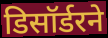
डिसॉर्डरने